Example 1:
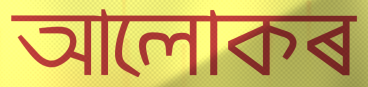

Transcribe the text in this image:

আলোকৰ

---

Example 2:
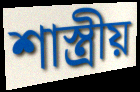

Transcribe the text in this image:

শাস্ত্ৰীয়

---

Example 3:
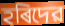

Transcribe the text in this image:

হৰিদেৱ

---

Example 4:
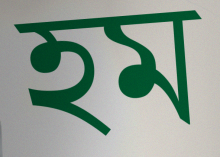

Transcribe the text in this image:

হম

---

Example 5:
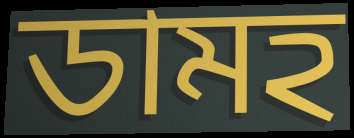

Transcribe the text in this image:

ডামহ